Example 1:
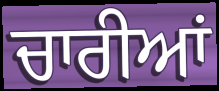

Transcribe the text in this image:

ਚਾਰੀਆਂ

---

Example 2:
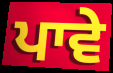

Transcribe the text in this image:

ਪਾਵੇ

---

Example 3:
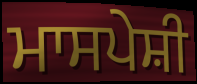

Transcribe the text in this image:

ਮਾਸਪੇਸ਼ੀ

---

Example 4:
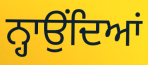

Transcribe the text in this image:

ਨ੍ਹਾਉਂਦਿਆਂ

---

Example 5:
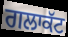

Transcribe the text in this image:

ਗਲਾਕੱਟ